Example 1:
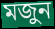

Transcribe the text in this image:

মজুন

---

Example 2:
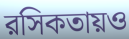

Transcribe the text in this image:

রসিকতায়ও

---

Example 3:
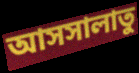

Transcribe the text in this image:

আসসালাতু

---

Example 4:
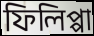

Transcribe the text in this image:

ফিলিপ্পা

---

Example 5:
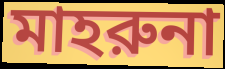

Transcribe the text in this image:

মাহরুনা